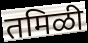
तमिळी